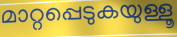
മാറ്റപ്പെടുകയുള്ളൂ